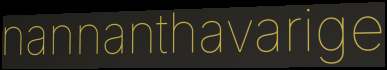
nannanthavarige